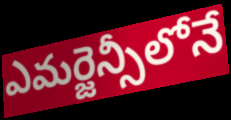
ఎమర్జెన్సీలోనే